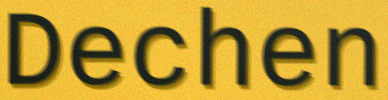
Dechen